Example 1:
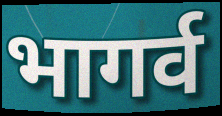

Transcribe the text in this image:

भागर्व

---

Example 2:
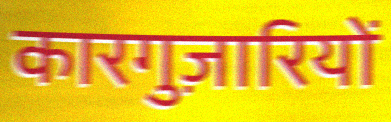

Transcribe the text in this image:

कारगुज़ारियों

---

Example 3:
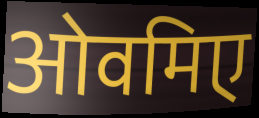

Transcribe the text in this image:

ओवमिए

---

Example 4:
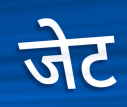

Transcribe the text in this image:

जेट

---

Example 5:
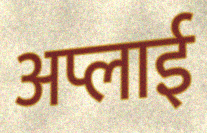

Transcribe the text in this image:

अप्लाई